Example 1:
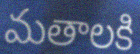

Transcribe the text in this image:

మతాలకి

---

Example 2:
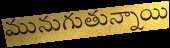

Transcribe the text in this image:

మునుగుతున్నాయి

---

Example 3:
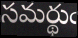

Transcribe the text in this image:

సమర్థుఁ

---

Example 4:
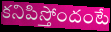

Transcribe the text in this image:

కనిపిస్తోందంటే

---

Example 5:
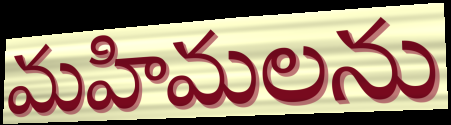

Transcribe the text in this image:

మహిమలను